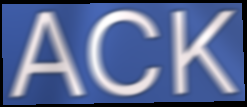
ACK